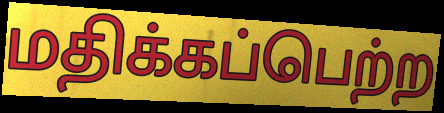
மதிக்கப்பெற்ற